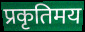
प्रकृतिमय